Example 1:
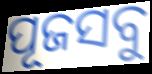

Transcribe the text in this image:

ପୂଜସବୁ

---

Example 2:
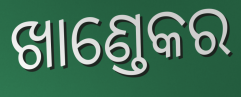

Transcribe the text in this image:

ଖାଣ୍ଡେକର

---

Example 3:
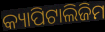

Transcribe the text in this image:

କ୍ୟାପିଟାଲିଜିମ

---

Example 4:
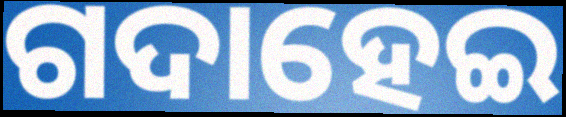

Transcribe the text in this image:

ଗଦାହେଇ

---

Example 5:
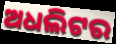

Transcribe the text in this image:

ଅଧଲିଟର